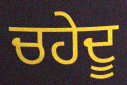
ਚਹੇਦੂ